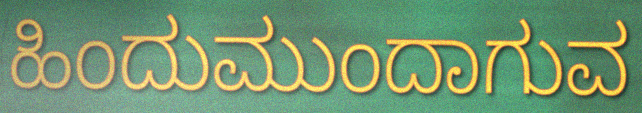
ಹಿಂದುಮುಂದಾಗುವ